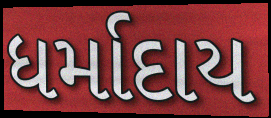
ધર્માદાય